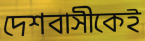
দেশবাসীকেই